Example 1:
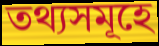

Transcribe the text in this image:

তথ্যসমূহে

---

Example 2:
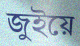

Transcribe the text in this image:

জুইয়ে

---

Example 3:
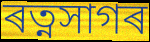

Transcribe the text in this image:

ৰত্নসাগৰ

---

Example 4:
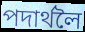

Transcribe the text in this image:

পদাৰ্থলৈ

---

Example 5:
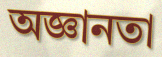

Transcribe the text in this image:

অজ্ঞানতা